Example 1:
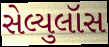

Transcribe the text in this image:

સેલ્યુલૉસ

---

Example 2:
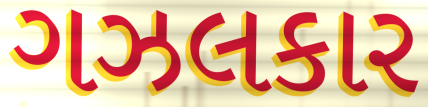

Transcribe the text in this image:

ગઝલકાર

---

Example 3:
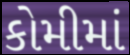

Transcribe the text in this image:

કોમીમાં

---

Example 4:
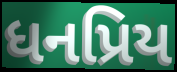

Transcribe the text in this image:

ધનપ્રિય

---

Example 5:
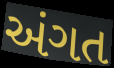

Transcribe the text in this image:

અંગત